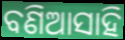
ବଣିଆସାହି